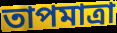
তাপমাত্রা